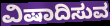
ವಿಷಾದಿಸುವ